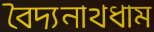
বৈদ্যনাথধাম